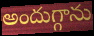
అందుగ్గాను